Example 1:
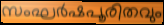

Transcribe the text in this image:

സംഘർഷപൂരിതവും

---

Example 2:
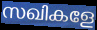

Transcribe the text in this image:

സഖികളേ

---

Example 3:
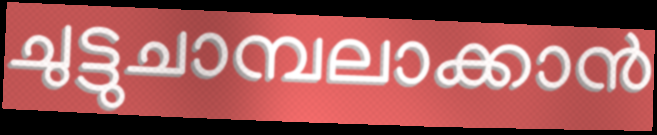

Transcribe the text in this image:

ചുട്ടുചാമ്പലാക്കാൻ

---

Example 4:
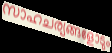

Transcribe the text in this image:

സാഹചര്യങ്ങളോടും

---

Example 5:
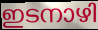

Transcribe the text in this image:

ഇടനാഴി